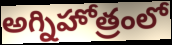
అగ్నిహోత్రంలో